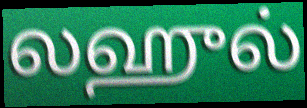
லஹுல்